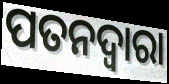
ପତନଦ୍ଵାରା